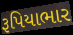
રૂપિયાભાર